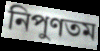
নিপুণতম